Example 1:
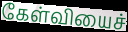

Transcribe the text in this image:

கேள்வியைச்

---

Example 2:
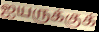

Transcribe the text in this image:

ஐயருக்குக்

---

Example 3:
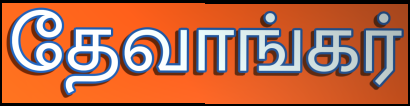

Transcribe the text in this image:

தேவாங்கர்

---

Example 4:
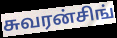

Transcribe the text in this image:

சுவரன்சிங்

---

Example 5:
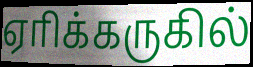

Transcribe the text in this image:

ஏரிக்கருகில்